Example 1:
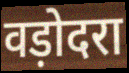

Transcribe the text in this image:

वड़ोदरा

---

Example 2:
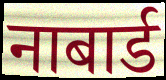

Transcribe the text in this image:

नाबार्ड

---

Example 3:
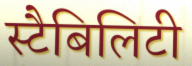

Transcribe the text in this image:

स्टैबिलिटी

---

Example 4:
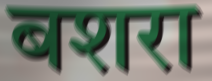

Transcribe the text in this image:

बशरा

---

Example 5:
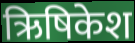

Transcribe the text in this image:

ऋिषिकेश